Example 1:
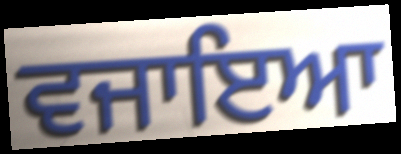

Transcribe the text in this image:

ਵਜਾਇਆ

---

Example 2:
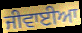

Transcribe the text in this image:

ਜੀਵਾਈਆ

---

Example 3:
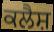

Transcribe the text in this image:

ਕਲੈਸ਼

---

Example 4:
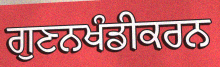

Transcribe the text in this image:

ਗੁਣਨਖੰਡੀਕਰਨ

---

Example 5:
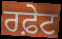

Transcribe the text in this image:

ਰਫ਼ੇਟ